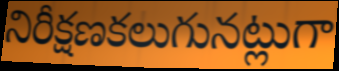
నిరీక్షణకలుగునట్లుగా